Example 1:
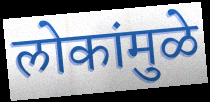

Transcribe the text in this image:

लोकांमुळे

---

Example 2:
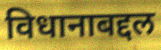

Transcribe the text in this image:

विधानाबद्दल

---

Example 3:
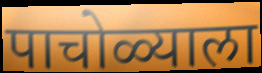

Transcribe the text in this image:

पाचोळ्याला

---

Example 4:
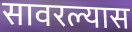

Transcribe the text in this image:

सावरल्यास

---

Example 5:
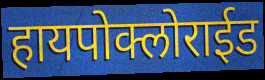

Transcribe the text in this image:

हायपोक्लोराईड